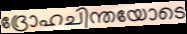
ദ്രോഹചിന്തയോടെ